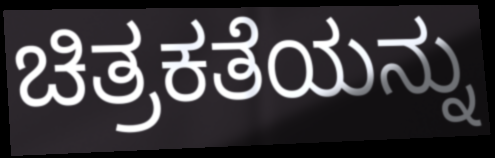
ಚಿತ್ರಕತೆಯನ್ನು